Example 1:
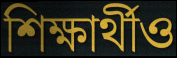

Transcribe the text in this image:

শিক্ষার্থীও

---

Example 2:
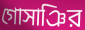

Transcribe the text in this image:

গোসাঞির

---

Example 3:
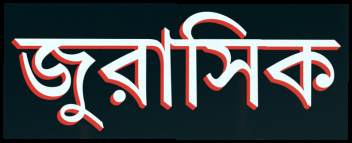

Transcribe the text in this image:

জুরাসিক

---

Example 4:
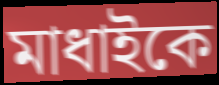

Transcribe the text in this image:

মাধাইকে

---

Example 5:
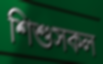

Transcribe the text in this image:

শিশুসকল